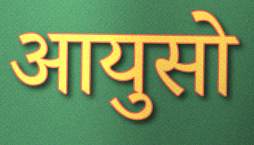
आयुसो